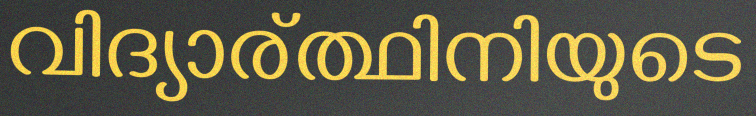
വിദ്യാര്ത്ഥിനിയുടെ